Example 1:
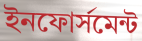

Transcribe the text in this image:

ইনফোর্সমেন্ট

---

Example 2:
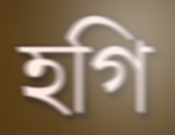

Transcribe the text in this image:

হগি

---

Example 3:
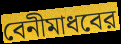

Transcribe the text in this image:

বেনীমাধবের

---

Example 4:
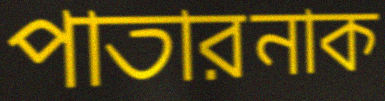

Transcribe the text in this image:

পাতারনাক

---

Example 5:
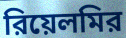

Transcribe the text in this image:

রিয়েলমির